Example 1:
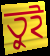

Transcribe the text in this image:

তুই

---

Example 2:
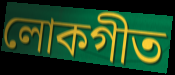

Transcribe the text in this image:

লোকগীত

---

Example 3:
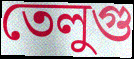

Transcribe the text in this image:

তেলুগু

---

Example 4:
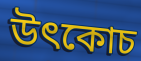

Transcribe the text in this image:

উৎকোচ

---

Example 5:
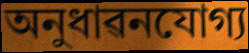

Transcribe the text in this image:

অনুধাৱনযোগ্য